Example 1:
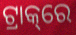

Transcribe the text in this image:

ଟ୍ରାକ୍‌ରେ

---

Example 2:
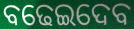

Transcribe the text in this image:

ବଢେଇଦେବ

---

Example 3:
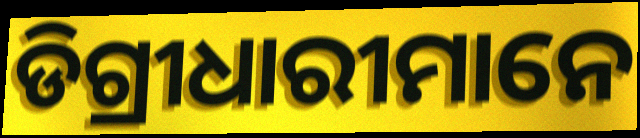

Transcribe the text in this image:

ଡିଗ୍ରୀଧାରୀମାନେ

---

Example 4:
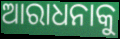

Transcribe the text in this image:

ଆରାଧନାକୁ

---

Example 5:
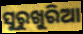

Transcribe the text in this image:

ସୁରୁଖୁରିଆ